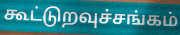
கூட்டுறவுச்சங்கம்